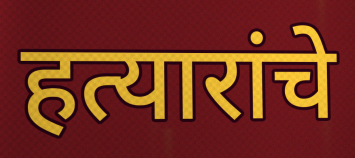
हत्यारांचे